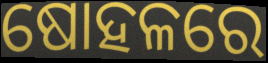
ଷୋହଳରେ